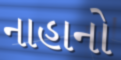
નાહાનો